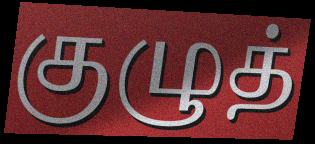
குழுத்